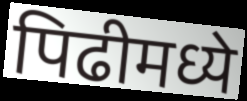
पिढीमध्ये